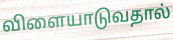
விளையாடுவதால்